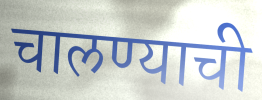
चालण्याची